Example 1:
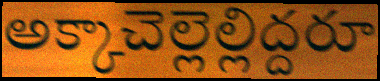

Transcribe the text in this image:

అక్కాచెల్లెల్లిద్దరూ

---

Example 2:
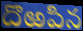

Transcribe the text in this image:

దొఱపిన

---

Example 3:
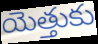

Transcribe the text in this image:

యెత్తుకు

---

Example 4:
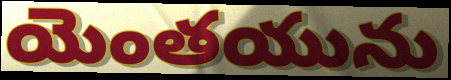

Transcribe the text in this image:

యెంతయును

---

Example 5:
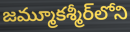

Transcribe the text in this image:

జమ్మూకశ్మీర్‌లోని